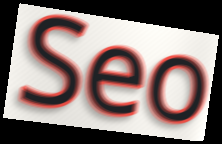
Seo